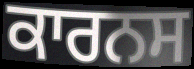
ਕਾਰਨਸ